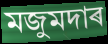
মজুমদাৰ